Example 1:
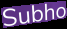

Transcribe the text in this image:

Subho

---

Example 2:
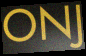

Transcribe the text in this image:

ONJ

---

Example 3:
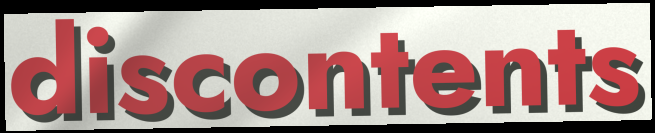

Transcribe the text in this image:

discontents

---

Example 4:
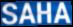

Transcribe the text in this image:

SAHA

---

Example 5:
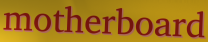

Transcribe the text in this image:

motherboard